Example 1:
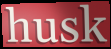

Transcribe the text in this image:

husk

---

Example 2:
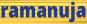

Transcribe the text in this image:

ramanuja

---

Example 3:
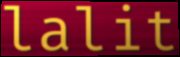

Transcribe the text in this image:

lalit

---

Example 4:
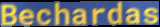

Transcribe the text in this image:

Bechardas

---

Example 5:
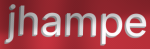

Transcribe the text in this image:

jhampe